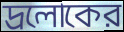
দ্রলোকের